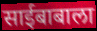
साईबाबाला